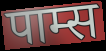
पाम्स